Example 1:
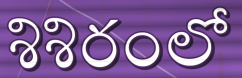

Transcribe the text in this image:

శిశిరంలో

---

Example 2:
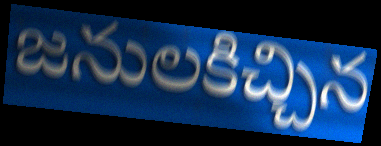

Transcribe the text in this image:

జనులకిచ్చిన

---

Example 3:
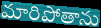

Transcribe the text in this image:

మారిపోతాను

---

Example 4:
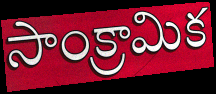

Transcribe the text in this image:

సాంక్రామిక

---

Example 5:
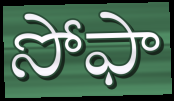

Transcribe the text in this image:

సోఫా